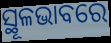
ସ୍ଥୂଳଭାବରେ